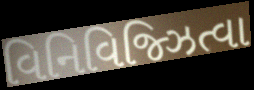
વિનિવિજ્ઝિત્વા